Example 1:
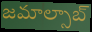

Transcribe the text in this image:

జమాల్సాబ్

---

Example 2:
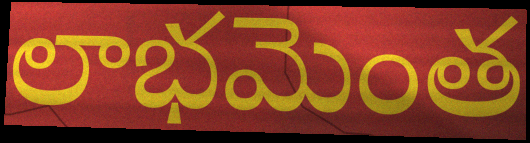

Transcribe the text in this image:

లాభమెంత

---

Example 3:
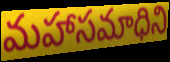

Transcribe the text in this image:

మహాసమాధిని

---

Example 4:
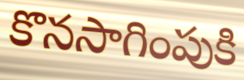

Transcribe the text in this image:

కొనసాగింపుకి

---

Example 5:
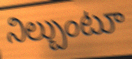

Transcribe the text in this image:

నిల్చుంటూ